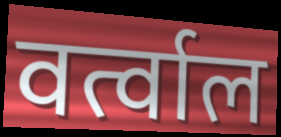
वर्त्वाल